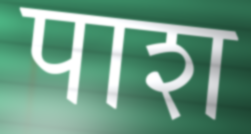
पाश